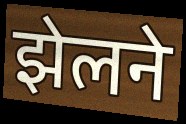
झेलने